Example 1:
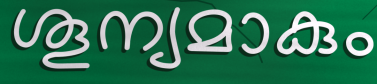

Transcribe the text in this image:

ശൂന്യമാകും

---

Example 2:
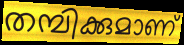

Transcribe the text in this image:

തമ്പിക്കുമാണ്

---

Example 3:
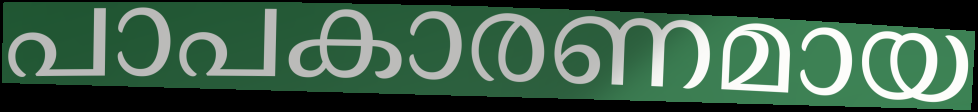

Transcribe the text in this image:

പാപകാരണമായ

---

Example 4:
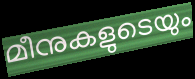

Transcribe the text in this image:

മീനുകളുടെയും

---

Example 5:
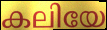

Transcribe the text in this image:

കലിയേ